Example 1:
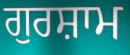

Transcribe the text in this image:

ਗੁਰਸ਼ਾਮ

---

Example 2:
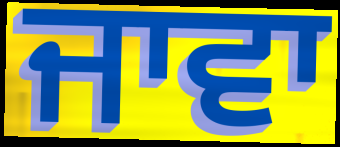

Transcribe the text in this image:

ਜਾਵਾ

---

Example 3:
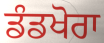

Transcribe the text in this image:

ਡੰਡਖੋਰਾ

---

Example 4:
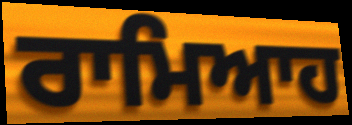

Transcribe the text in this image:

ਰਾਮਿਆਹ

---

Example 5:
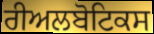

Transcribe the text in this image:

ਰੀਅਲਬੋਟਿਕਸ